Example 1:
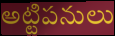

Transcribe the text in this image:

అట్టిపనులు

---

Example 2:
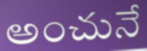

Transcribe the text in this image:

అంచునే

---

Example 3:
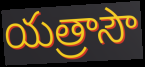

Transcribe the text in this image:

యత్రాసౌ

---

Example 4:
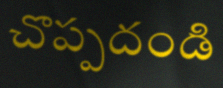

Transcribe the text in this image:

చొప్పదండి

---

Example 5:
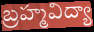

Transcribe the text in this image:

బ్రహ్మవిద్యా